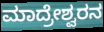
ಮಾದ್ರೇಶ್ವರನ